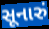
સૂનારું